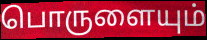
பொருளையும்